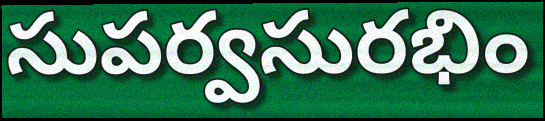
సుపర్వసురభిం